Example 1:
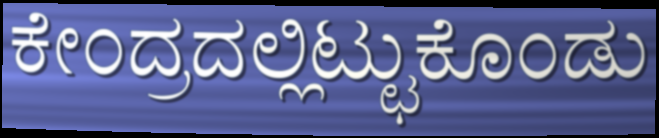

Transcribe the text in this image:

ಕೇಂದ್ರದಲ್ಲಿಟ್ಟುಕೊಂಡು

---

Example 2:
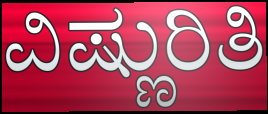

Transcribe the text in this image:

ವಿಷ್ಣುರಿತಿ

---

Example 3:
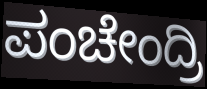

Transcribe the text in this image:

ಪಂಚೇಂದ್ರಿ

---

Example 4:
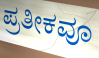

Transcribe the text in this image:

ಪ್ರತೀಕವೂ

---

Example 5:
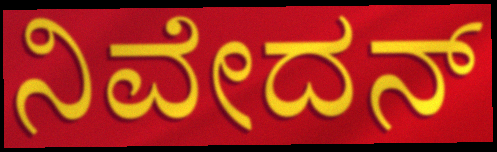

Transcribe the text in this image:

ನಿವೇದನ್